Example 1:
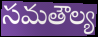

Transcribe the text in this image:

సమతౌల్య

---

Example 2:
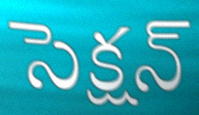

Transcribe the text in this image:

సెక్షన్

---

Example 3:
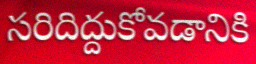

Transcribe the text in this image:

సరిదిద్దుకోవడానికి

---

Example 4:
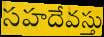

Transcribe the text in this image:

సహదేవస్తు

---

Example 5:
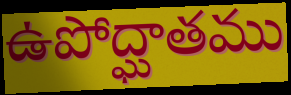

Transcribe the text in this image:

ఉపోద్ఘాతము